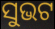
ସୁଭଟ